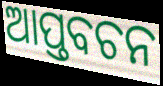
ଆପ୍ତବଚନ